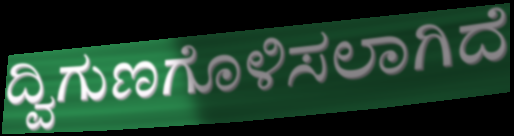
ದ್ವಿಗುಣಗೊಳಿಸಲಾಗಿದೆ